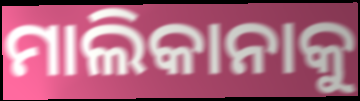
ମାଲିକାନାକୁ